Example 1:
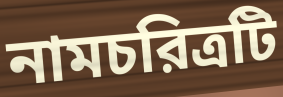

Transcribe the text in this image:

নামচরিত্রটি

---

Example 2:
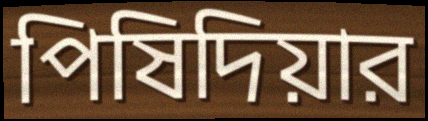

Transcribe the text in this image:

পিষিদিয়ার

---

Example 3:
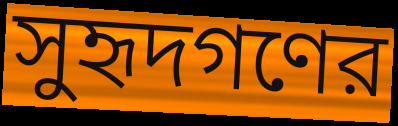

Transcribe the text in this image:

সুহৃদগণের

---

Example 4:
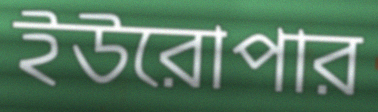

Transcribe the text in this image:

ইউরোপার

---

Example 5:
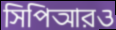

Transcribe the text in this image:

সিপিআরও